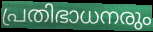
പ്രതിഭാധനരും